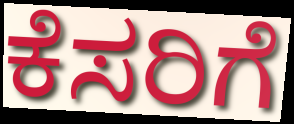
ಕೆಸರಿಗೆ